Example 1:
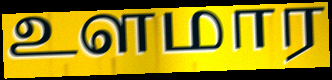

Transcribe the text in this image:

உளமார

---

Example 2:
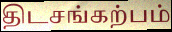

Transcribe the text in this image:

திடசங்கற்பம்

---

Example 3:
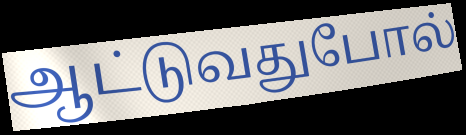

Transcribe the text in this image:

ஆட்டுவதுபோல்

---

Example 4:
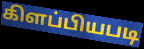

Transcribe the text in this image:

கிளப்பியபடி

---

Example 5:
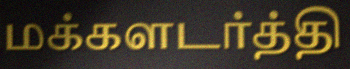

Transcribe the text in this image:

மக்களடர்த்தி